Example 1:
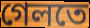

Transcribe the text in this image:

গেলতে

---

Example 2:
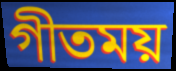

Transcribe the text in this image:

গীতময়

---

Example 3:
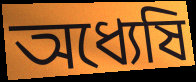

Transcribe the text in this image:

অধ্যেষি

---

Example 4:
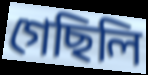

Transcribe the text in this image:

গেছিলি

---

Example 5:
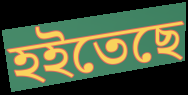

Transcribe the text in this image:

হইতেছে